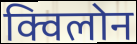
क्विलोन